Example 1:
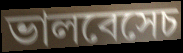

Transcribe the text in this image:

ভালবেসেচ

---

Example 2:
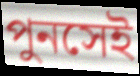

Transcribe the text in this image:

পুনসেই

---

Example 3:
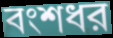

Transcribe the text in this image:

বংশধর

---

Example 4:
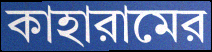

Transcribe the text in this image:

কাহারামের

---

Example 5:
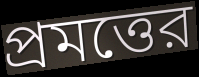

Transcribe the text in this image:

প্রমত্তের